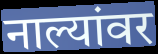
नाल्यांवर